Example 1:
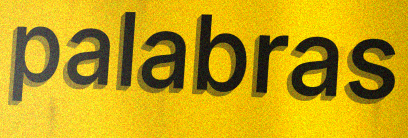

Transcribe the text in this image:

palabras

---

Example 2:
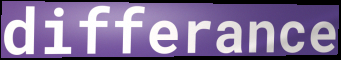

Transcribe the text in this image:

differance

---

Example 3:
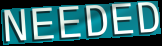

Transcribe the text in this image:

NEEDED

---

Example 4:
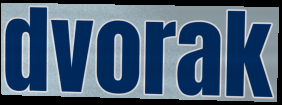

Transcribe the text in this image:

dvorak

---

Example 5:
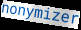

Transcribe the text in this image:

nonymizer